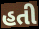
હતી